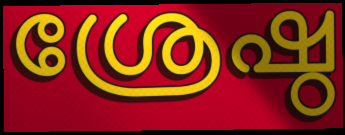
ശ്രേഷ്ഠ